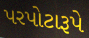
પરપોટારૂપે